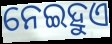
ନେଇହୁଏ